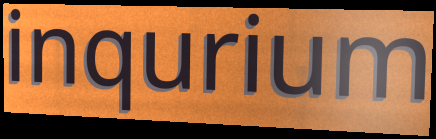
inqurium